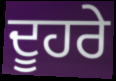
ਦੂਹਰੇ